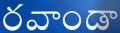
రవాండా